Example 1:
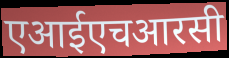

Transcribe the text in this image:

एआईएचआरसी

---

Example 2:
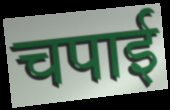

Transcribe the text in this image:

चपाई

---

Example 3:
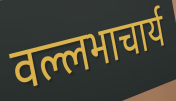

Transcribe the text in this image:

वल्लभाचार्य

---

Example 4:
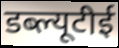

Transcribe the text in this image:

डब्ल्यूटीई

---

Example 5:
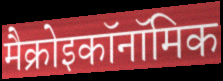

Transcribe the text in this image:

मैक्रोइकॉनॉमिक